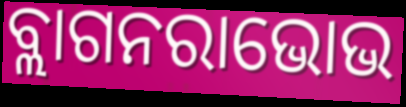
ବ୍ଲାଗନରାଭୋଭ